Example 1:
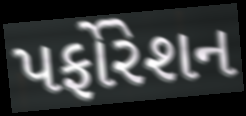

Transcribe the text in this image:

પર્ફોરેશન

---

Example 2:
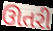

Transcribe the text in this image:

ઊતરી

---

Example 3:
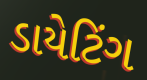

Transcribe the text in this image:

ડાયેટિંગ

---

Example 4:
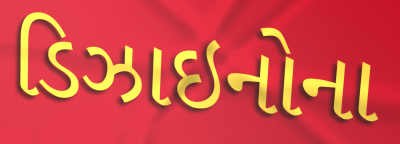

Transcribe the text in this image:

ડિઝાઇનોના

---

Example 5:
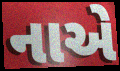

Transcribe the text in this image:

નાએ